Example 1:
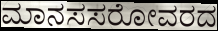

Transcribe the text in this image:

ಮಾನಸಸರೋವರದ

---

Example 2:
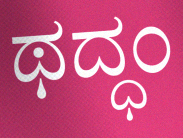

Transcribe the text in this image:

ಥದ್ಧಂ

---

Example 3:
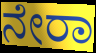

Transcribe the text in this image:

ನೇರಾ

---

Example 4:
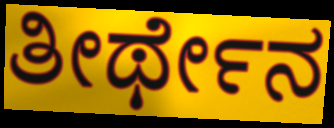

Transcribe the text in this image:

ತೀರ್ಥೇನ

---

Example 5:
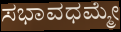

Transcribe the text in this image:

ಸಭಾವಧಮ್ಮೇ